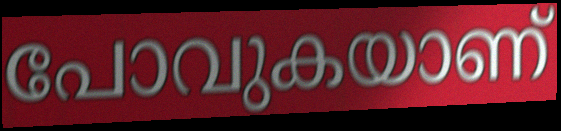
പോവുകയാണ്